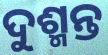
ଦୁଶ୍ମନ୍ତ